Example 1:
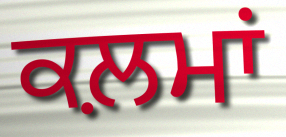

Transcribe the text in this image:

ਕਲ਼ਮਾਂ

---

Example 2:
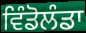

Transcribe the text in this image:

ਵਿੰਡੋਲੰਡਾ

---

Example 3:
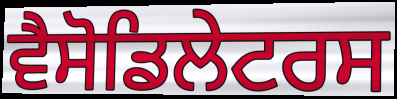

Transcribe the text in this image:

ਵੈਸੋਡਿਲੇਟਰਸ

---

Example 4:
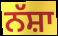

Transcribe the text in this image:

ਨੱਸ਼ਾ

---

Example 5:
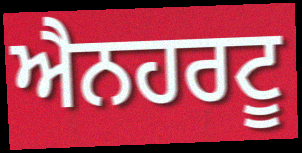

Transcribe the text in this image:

ਐਨਹਰਟੂ